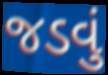
જડવું